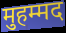
मुहम्‍मद